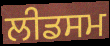
ਲੀਡਸਮ